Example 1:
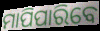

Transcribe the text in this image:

ମାପିପାରିବେ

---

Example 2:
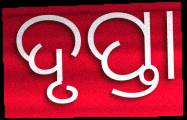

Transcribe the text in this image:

ଦୃପ୍ତା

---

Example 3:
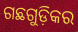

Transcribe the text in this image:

ଗଛଗୁଡ଼ିକର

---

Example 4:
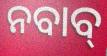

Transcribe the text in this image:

ନବାବ୍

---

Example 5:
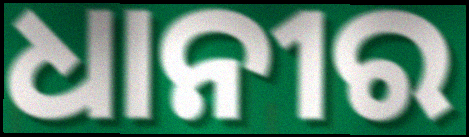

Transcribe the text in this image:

ଧାନୀର